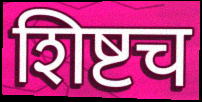
शिष्टच